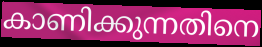
കാണിക്കുന്നതിനെ